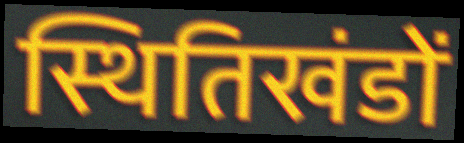
स्थितिखंडों